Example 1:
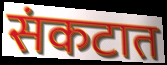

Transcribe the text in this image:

संकटात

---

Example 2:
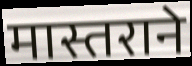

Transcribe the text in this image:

मास्तराने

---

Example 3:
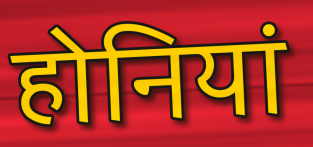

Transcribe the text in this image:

होनियां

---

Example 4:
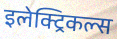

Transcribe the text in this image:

इलेक्ट्रिकल्स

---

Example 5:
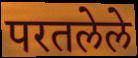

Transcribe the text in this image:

परतलेले